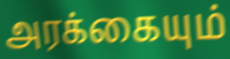
அரக்கையும்